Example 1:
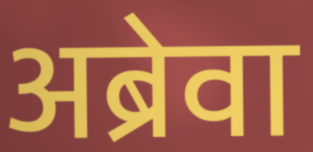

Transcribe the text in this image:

अब्रेवा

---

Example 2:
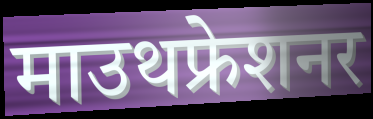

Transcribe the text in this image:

माउथफ्रेशनर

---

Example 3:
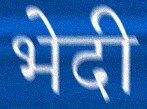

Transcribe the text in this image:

भेदी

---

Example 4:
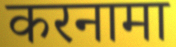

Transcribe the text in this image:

करनामा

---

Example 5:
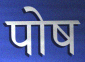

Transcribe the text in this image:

पोष